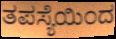
ತಪಸ್ಯೆಯಿಂದ